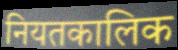
नियतकालिक